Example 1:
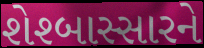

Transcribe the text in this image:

શેશ્બાસ્સારને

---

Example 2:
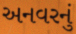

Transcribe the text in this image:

અનવરનું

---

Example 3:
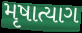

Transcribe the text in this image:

મૃષાત્યાગ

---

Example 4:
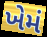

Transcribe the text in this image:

ખેમં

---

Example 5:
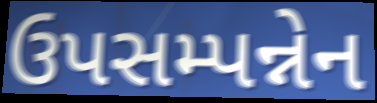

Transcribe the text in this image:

ઉપસમ્પન્નેન